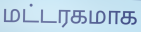
மட்டரகமாக